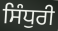
ਸਿੰਧੁਰੀ